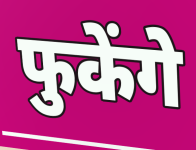
फुकेंगे